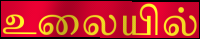
உலையில்